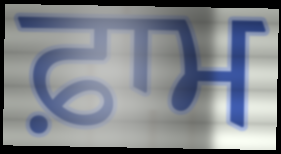
ਫ਼ਾਮ